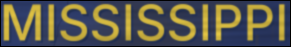
MISSISSIPPI